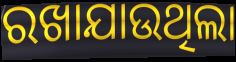
ରଖାଯାଉଥିଲା